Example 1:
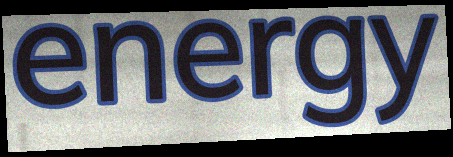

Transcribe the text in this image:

energy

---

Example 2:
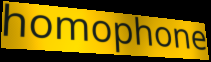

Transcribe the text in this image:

homophone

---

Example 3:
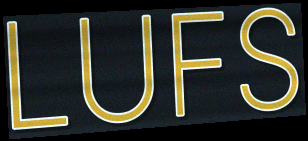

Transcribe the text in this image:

LUFS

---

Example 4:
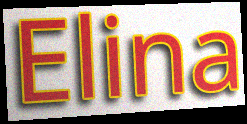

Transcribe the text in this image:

Elina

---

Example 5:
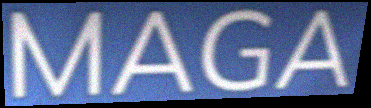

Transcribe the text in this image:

MAGA